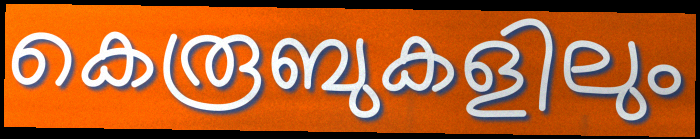
കെരൂബുകളിലും